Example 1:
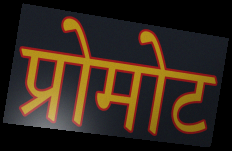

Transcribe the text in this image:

प्रोमोट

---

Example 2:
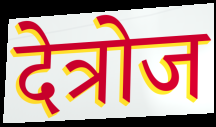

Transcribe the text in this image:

देत्रोज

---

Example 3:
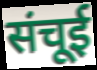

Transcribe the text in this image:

संचूई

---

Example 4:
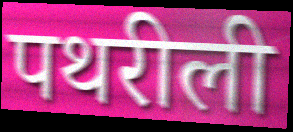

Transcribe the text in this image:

पथरीली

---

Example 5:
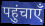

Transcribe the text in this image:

पहुंचाएँ